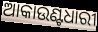
ଆକାଉଣ୍ଟଧାରୀ